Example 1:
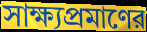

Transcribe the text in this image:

সাক্ষ্যপ্রমাণের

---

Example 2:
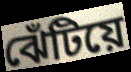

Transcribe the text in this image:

ঝেঁটিয়ে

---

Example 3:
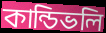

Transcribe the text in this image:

কান্ডিভলি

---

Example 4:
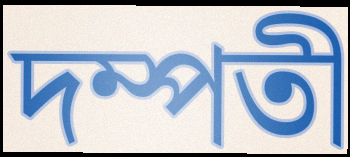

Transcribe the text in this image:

দম্পতী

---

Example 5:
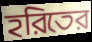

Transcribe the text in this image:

হরিতের